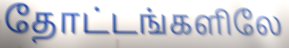
தோட்டங்களிலே